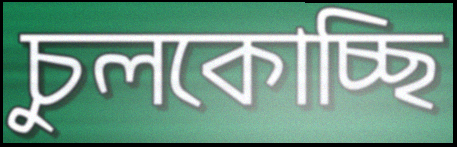
চুলকোচ্ছি